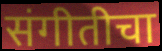
संगीतीचा